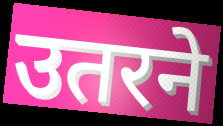
उतरने